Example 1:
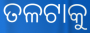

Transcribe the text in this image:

ତଳଟାକୁ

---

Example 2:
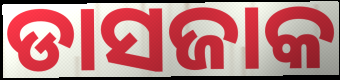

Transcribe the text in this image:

ଡାସଜାକ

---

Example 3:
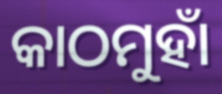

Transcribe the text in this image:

କାଠମୁହାଁ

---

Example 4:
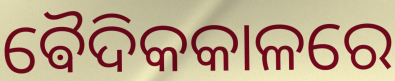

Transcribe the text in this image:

ଵୈଦିକକାଳରେ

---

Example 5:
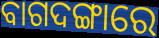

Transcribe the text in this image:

ବାଗଦଙ୍ଗାରେ